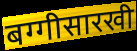
बग्गीसारखी